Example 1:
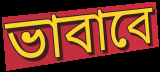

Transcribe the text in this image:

ভাবাবে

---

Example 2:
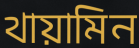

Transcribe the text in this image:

থায়ামিন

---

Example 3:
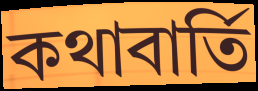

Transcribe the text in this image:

কথাবার্তি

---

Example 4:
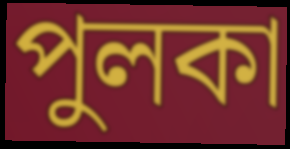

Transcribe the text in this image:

পুলকা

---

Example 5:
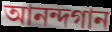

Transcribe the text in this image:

আনন্দগান